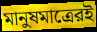
মানুষমাত্রেরই